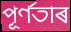
পূৰ্ণতাৰ